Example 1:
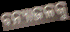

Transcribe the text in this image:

ବନ୍ୟାଜଳକୁ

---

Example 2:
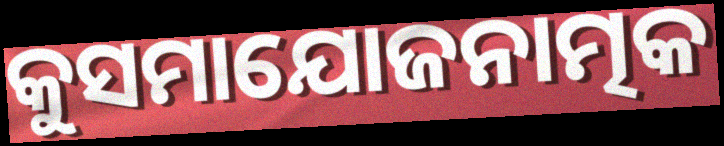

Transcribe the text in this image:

କୁସମାଯୋଜନାତ୍ମକ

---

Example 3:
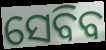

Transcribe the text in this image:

ସେବିବ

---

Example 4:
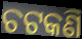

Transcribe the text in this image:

ଚଟକଣି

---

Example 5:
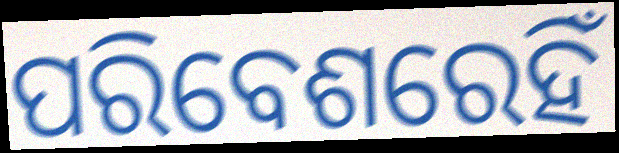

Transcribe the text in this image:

ପରିବେଶରେହିଁ